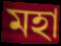
মহা